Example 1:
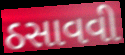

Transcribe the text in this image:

ઠસાવવી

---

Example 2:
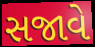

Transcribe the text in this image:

સજાવે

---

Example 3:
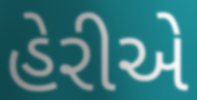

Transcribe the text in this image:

હેરીએ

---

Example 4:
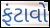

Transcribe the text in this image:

ફંટાવો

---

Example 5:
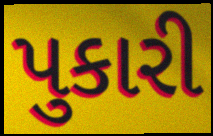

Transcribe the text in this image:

પુકારી